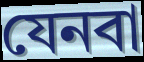
যেনবা